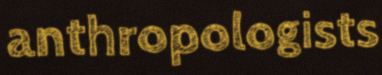
anthropologists